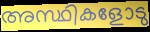
അസ്ഥികളോടു